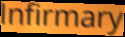
Infirmary